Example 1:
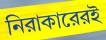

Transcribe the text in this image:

নিরাকারেরই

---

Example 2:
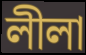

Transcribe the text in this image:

লীলা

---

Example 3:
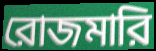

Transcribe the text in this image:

রোজমারি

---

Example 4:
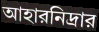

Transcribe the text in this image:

আহারনিদ্রার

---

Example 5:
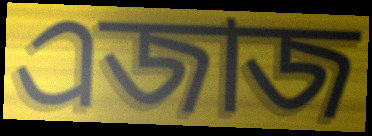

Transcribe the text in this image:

এজাজ